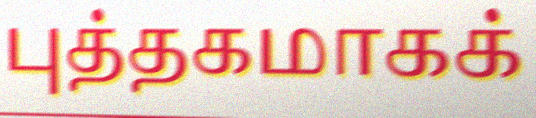
புத்தகமாகக்